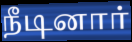
நீடினார்